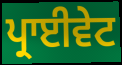
ਪ੍ਰਾਈਵੇਟ